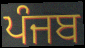
ਪੰਜਬ